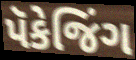
પૅકેજિંગ